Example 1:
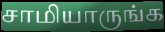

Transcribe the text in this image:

சாமியாருங்க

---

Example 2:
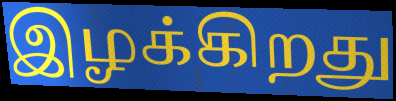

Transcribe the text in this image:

இழக்கிறது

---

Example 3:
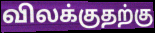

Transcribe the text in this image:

விலக்குதற்கு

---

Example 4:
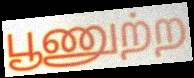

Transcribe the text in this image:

பூணுற்ற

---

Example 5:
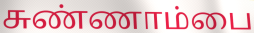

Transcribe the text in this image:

சுண்ணாம்பை